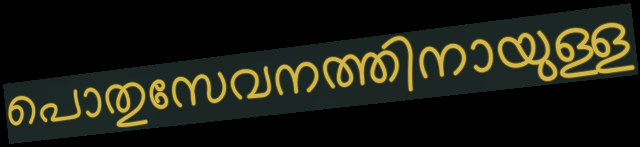
പൊതുസേവനത്തിനായുള്ള